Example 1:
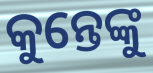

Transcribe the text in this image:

କୁନ୍ତେଙ୍କୁ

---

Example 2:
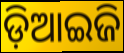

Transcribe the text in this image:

ଡ଼ିଆଇଜି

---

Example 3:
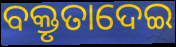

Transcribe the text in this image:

ବକ୍ତୃତାଦେଇ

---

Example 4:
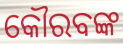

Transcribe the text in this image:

କୌରବଙ୍କ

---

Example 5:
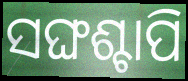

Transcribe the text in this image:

ସଙ୍ଘଶ୍ଚାପି